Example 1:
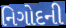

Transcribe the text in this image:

નિગોદની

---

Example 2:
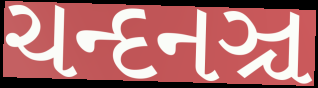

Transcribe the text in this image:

ચન્દનઞ્ચ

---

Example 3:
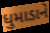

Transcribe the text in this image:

ધુમાડાને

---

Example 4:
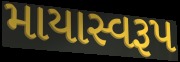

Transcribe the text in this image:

માયાસ્વરૂપ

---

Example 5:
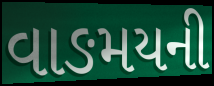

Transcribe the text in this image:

વાઙમયની